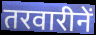
तरवारीनें